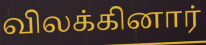
விலக்கினார்